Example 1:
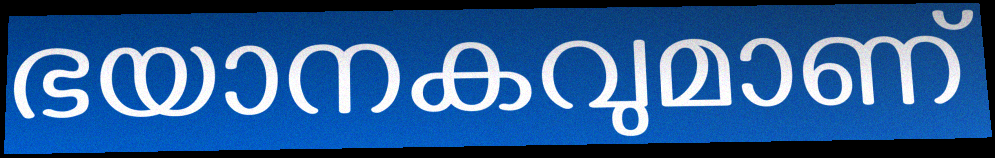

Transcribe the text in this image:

ഭയാനകവുമാണ്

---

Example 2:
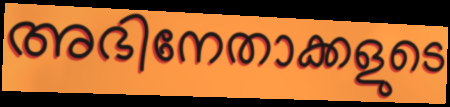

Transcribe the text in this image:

അഭിനേതാക്കളുടെ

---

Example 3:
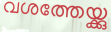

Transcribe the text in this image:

വശത്തേയ്ക്കു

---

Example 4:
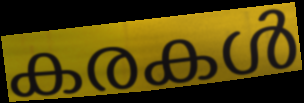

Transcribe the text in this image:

കരകൾ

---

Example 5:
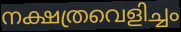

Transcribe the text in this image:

നക്ഷത്രവെളിച്ചം